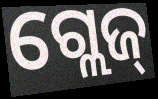
ଗ୍ଲେଜ୍